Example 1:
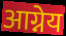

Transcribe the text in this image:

आग्नेय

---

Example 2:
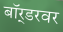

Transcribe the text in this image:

बॉर्डरवर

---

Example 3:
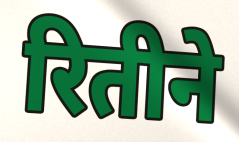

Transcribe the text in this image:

रितीने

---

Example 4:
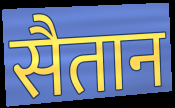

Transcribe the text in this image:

सैतान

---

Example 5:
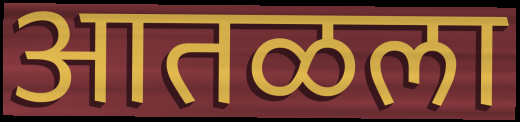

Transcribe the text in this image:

आतळला